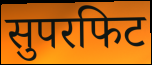
सुपरफिट